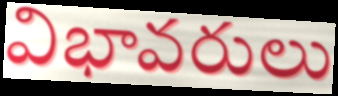
విభావరులు